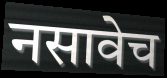
नसावेच